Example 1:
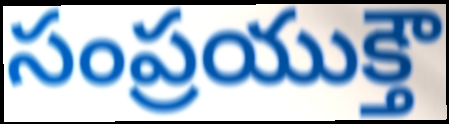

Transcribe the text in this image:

సంప్రయుక్తౌ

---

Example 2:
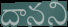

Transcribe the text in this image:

దానని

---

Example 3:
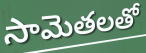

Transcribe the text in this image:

సామెతలతో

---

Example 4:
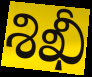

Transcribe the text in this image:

శిఖీ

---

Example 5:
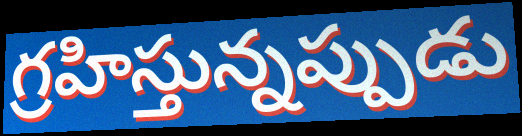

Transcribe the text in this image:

గ్రహిస్తున్నప్పుడు